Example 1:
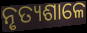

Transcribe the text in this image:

ନୃତ୍ୟଶାଳେ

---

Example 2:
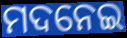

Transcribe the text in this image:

ମଦନେଇ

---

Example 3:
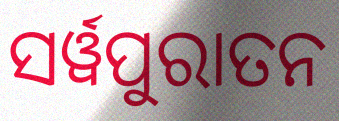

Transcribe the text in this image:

ସର୍ୱପୁରାତନ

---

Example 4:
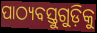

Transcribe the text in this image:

ପାଠ୍ୟବସ୍ତୁଗୁଡ଼ିକୁ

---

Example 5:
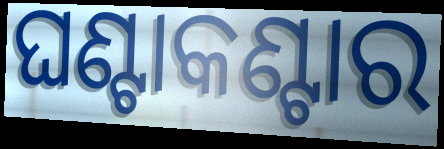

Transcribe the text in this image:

ଘଣ୍ଟାକଣ୍ଟାର